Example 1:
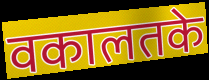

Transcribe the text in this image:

वकालतके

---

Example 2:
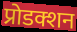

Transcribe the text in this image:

प्रोडक्‍शन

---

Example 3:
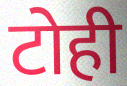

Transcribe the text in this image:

टोही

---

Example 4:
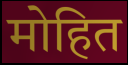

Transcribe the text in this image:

मोहित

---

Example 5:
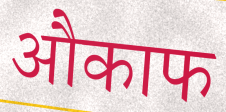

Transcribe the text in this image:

औकाफ